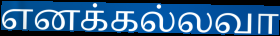
எனக்கல்லவா